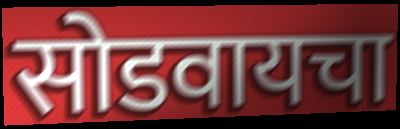
सोडवायचा